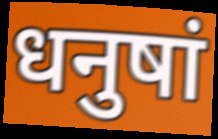
धनुषां